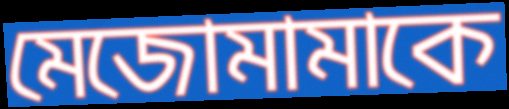
মেজোমামাকে